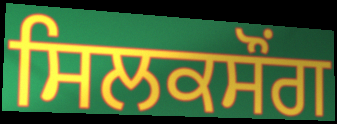
ਸਿਲਕਸੌਂਗ